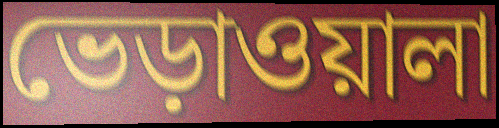
ভেড়াওয়ালা